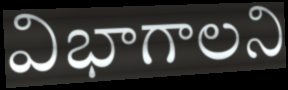
విభాగాలని